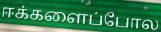
ஈக்களைப்போல